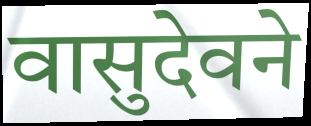
वासुदेवने